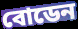
বোডেন